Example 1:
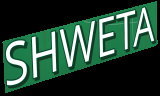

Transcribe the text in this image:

SHWETA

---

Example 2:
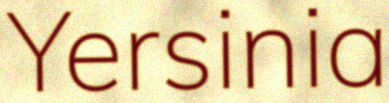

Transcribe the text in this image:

Yersinia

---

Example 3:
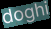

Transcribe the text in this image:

doghi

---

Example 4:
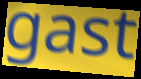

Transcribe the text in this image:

gast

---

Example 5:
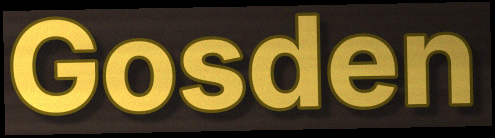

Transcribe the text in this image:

Gosden